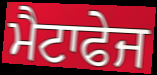
ਮੈਟਾਫੇਜ